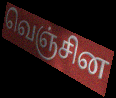
வெஞ்சின